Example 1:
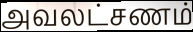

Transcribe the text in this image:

அவலட்சணம்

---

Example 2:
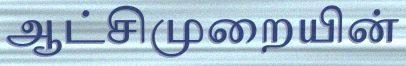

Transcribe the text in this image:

ஆட்சிமுறையின்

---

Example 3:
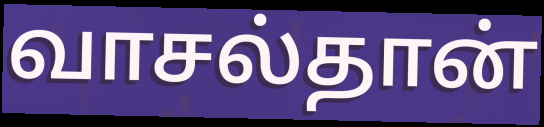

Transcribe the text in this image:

வாசல்தான்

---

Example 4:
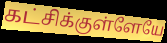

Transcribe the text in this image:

கட்சிக்குள்ளேயே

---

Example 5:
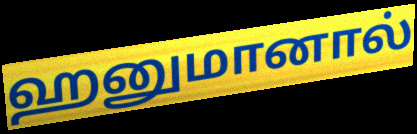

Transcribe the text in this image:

ஹனுமானால்